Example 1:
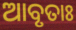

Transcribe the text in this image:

ଆବୃତାଃ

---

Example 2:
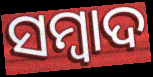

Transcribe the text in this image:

ସମ୍ବାଦ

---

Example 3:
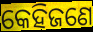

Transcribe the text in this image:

କେହିଜଣେ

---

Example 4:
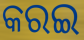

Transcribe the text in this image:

କରଇ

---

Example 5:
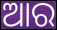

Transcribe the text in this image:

ଆର